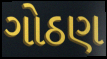
ગોઠણ